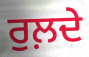
ਰੁਲ਼ਦੇ